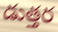
డుత్తర